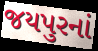
જયપુરનાં